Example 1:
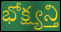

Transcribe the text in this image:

భోక్ష్యన్తి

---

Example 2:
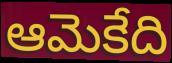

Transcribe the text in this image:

ఆమెకేది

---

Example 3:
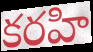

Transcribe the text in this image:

కరహి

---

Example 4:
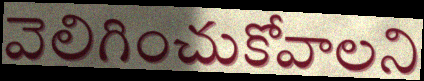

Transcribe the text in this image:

వెలిగించుకోవాలని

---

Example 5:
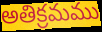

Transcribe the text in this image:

అతిక్రమము